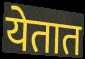
येतात